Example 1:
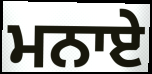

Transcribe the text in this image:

ਮਨਾਏ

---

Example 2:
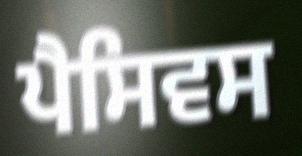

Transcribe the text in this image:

ਪੈਸਿਵਸ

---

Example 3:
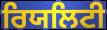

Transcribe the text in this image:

ਰਿਯਲਿਟੀ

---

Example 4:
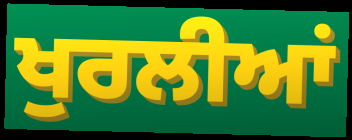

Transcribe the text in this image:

ਖੁਰਲੀਆਂ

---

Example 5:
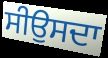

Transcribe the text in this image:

ਸੀਉਸਦਾ